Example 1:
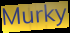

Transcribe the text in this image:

Murky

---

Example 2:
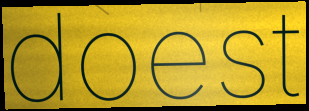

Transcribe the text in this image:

doest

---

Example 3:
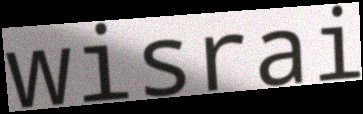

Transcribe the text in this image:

wisrai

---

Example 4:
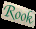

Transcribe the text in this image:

Rook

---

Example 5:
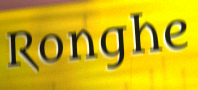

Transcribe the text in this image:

Ronghe